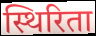
स्थिरिता